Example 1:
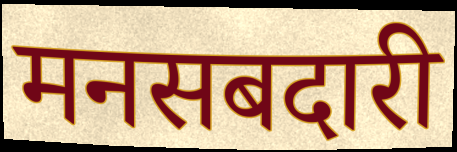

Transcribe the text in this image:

मनसबदारी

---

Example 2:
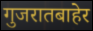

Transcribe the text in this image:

गुजरातबाहेर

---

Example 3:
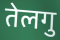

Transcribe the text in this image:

तेलगु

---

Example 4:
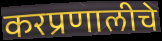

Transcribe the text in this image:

करप्रणालीचे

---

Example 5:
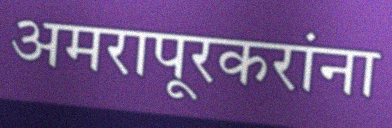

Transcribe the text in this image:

अमरापूरकरांना